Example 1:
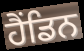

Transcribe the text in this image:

ਹੈਂਡਿਨ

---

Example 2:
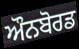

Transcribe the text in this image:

ਔਨਬੋਰਡ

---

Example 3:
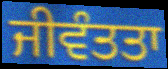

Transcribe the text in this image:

ਜੀਵੰਤਤਾ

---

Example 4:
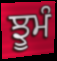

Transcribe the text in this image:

ਝੂਮੰ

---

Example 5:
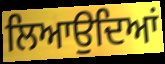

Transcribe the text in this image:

ਲਿਆਉਦਿਆਂ